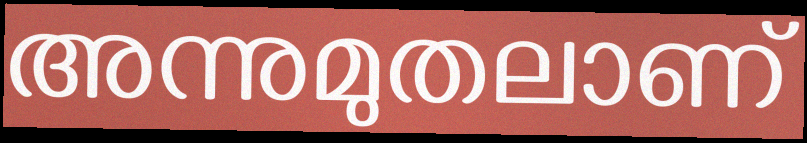
അന്നുമുതലാണ്